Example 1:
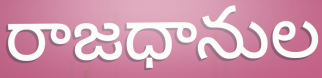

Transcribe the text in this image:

రాజధానుల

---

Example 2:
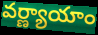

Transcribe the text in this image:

వర్ణ్యాయాం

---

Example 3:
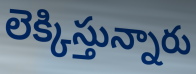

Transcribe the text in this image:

లెక్కిస్తున్నారు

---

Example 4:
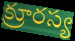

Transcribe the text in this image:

క్రూరస్య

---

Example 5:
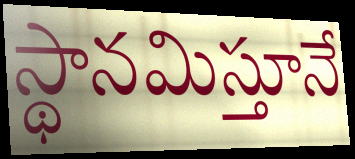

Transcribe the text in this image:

స్థానమిస్తూనే